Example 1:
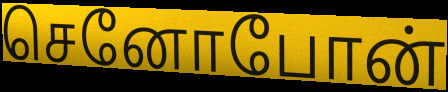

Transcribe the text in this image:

செனோபோன்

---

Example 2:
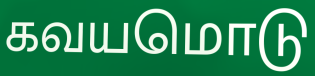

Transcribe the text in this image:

கவயமொடு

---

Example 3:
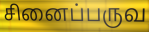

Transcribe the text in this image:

சினைப்பருவ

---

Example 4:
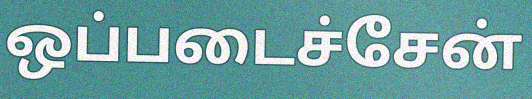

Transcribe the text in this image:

ஒப்படைச்சேன்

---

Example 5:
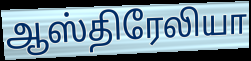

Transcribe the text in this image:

ஆஸ்திரேலியா